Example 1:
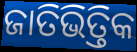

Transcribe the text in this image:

ଜାତିଭିତ୍ତିକ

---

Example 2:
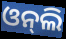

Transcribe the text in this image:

ଓନ୍‍ଲି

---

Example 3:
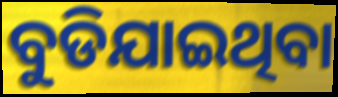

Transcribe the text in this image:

ବୁଡିଯାଇଥିବା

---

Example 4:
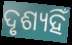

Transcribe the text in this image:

ଦୃଶ୍ୟହିଁ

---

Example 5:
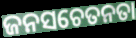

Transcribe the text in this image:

ଜନସଚେତନତା